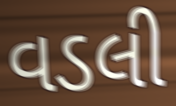
વડલી